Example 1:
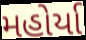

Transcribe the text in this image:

મહોર્યા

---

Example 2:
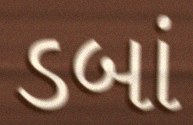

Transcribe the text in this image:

ડબાં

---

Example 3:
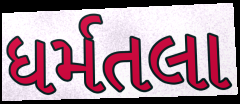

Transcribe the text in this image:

ધર્મતલા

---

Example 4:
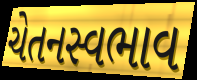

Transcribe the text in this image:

ચેતનસ્વભાવ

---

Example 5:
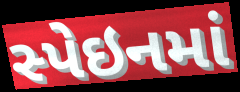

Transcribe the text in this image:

સ્પેઇનમાં